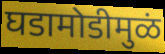
घडामोडीमुळं